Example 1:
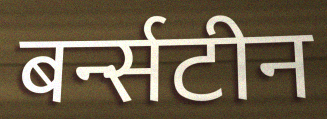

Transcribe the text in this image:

बर्न्सटीन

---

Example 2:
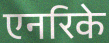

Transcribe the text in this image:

एनरिके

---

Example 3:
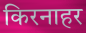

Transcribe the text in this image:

किरनाहर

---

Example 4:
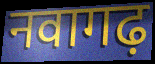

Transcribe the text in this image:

नवागढ़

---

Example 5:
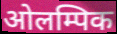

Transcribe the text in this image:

ओलम्पिक